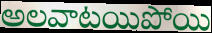
అలవాటయిపోయి